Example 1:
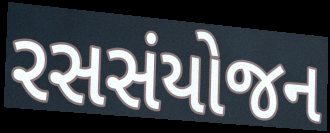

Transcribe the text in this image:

રસસંયોજન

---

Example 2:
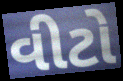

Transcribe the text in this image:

વીટો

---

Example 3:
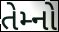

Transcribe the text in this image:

તેમ્નો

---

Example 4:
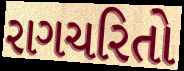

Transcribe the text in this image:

રાગચરિતો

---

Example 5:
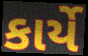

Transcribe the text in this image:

કાર્યે